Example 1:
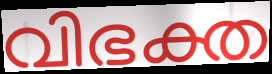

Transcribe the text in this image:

വിഭക്ത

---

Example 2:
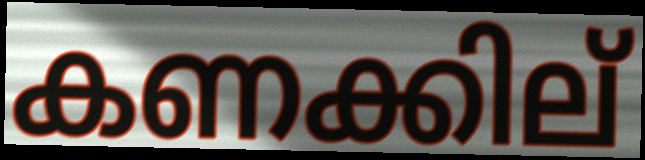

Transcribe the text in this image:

കണക്കില്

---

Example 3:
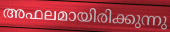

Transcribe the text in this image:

അഫലമായിരിക്കുന്നു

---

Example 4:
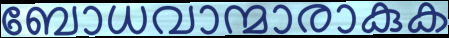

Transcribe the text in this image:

ബോധവാന്മാരാകുക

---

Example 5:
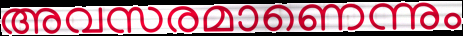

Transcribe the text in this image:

അവസരമാണെന്നും